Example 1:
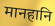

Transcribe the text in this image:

मानहानि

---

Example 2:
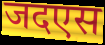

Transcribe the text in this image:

जदएस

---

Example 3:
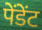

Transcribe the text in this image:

पेंडेंट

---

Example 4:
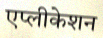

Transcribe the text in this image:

एप्लीकेशन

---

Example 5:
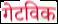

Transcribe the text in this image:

गेटविक